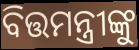
ବିତ୍ତମନ୍ତ୍ରୀଙ୍କୁ